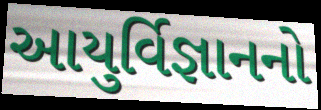
આયુર્વિજ્ઞાનનો